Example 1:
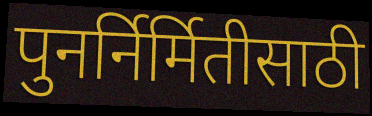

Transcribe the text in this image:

पुनर्निर्मितीसाठी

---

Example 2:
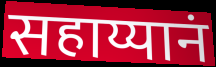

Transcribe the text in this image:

सहाय्यानं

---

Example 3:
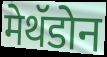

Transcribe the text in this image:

मेथॅडोन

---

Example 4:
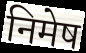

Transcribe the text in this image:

निमेष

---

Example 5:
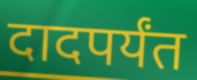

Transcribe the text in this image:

दादपर्यंत